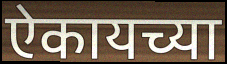
ऐकायच्या